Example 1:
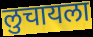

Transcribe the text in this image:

लुचायला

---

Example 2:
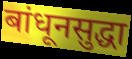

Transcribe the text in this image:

बांधूनसुद्धा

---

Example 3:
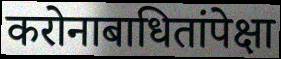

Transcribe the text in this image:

करोनाबाधितांपेक्षा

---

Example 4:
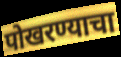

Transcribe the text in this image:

पोखरण्याचा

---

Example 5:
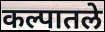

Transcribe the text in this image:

कल्पातले